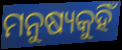
ମନୁଷ୍ୟକୁହିଁ